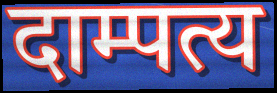
दाम्पत्य